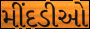
મીંદડીઓ